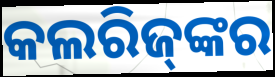
କଲରିଜ୍‌ଙ୍କର